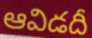
ఆవిడదీ